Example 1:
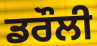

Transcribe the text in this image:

ਡਰੌਲੀ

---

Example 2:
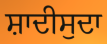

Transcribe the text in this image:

ਸ਼ਾਦੀਸੁਦਾ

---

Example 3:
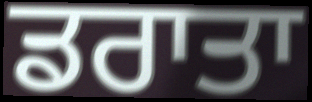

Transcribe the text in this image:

ਡਰਾਤਾ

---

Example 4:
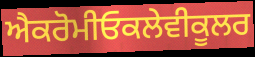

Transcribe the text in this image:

ਐਕਰੋਮੀਓਕਲੇਵੀਕੂਲਰ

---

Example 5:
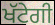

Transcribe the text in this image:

ਖੱਟੇਗੀ